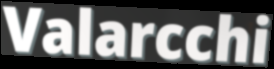
Valarcchi